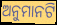
ଅନୁମାନଟି